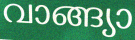
വാങ്ങ്യാ